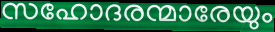
സഹോദരന്മാരേയും